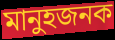
মানুহজনক